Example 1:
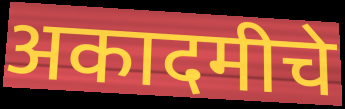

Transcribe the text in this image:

अकादमीचे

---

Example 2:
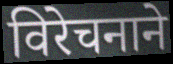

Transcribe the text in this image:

विरेचनाने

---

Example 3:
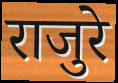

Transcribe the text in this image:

राजुरे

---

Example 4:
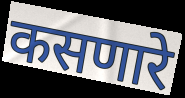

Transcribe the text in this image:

कसणारे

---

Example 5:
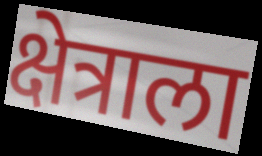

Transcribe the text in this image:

क्षेत्राला